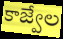
కాజ్వేల